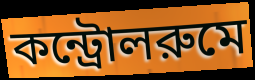
কন্ট্রোলরুমে